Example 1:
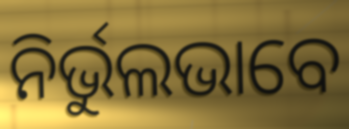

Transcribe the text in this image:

ନିର୍ଭୁଲଭାବେ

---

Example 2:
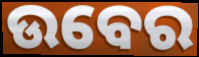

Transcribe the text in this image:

ଉବେର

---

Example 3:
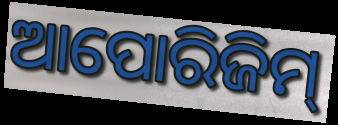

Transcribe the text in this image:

ଆପୋରିଜିମ୍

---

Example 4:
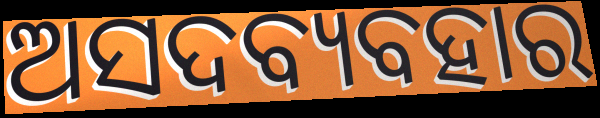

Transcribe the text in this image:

ଅସଦବ୍ୟବହାର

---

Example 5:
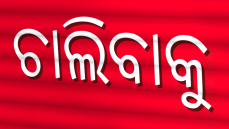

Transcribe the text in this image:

ଚାଲିବାକୁ